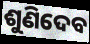
ଶୁଣିଦେବ